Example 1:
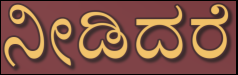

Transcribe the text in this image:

ನೀಡಿದರೆ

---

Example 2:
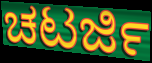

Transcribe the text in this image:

ಚಟರ್ಜಿ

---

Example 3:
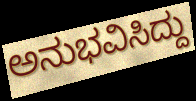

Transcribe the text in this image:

ಅನುಭವಿಸಿದ್ದು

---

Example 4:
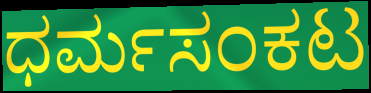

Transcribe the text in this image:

ಧರ್ಮಸಂಕಟ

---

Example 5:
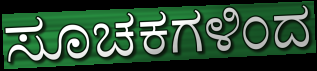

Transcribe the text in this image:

ಸೂಚಕಗಳಿಂದ